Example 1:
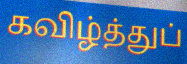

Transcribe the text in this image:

கவிழ்த்துப்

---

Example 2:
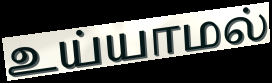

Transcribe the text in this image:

உய்யாமல்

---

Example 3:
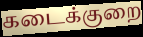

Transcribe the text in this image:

கடைக்குறை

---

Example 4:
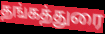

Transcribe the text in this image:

தங்கத்துரை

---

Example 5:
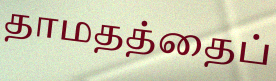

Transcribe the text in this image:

தாமதத்தைப்